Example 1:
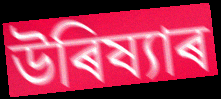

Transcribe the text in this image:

উৰিষ্যাৰ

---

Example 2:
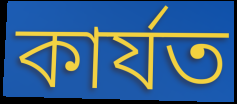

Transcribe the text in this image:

কাৰ্যত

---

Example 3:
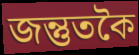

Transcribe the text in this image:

জন্তুতকৈ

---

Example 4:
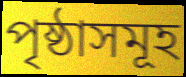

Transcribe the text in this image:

পৃষ্ঠাসমূহ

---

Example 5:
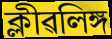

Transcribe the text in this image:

ক্লীৱলিঙ্গ